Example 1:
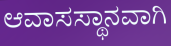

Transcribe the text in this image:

ಆವಾಸಸ್ಥಾನವಾಗಿ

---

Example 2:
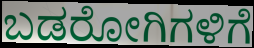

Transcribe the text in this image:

ಬಡರೋಗಿಗಳಿಗೆ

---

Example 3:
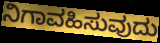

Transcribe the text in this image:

ನಿಗಾವಹಿಸುವುದು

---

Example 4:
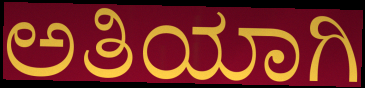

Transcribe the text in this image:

ಅತಿಯಾಗಿ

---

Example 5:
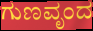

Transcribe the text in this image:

ಗುಣವೃಂದ